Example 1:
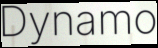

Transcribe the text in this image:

Dynamo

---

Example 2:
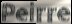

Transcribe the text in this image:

Peirre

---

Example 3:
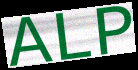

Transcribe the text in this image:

ALP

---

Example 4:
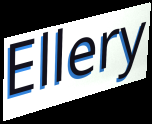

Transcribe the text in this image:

Ellery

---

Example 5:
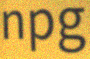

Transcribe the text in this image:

npg